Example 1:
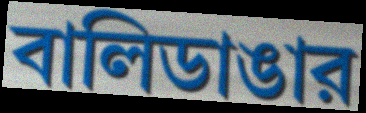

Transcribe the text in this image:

বালিডাঙার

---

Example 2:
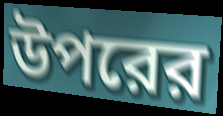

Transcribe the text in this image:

উপরের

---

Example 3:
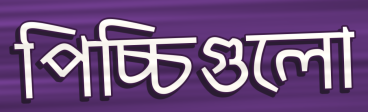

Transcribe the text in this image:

পিচ্চিগুলো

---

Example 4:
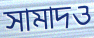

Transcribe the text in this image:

সামাদও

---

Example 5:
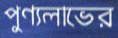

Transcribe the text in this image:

পুণ্যলাভের